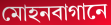
মোহনবাগানে